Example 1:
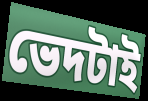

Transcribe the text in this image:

ভেদটাই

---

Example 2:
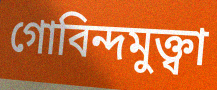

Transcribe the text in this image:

গোবিন্দমুক্ত্বা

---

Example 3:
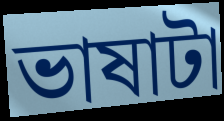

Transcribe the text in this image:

ভাষাটা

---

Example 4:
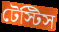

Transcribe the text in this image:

টেস্টিস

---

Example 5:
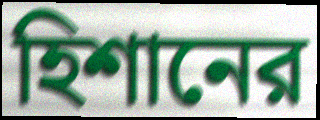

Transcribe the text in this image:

হিশানের